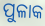
ପୁଳାକ